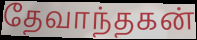
தேவாந்தகன்